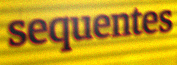
sequentes